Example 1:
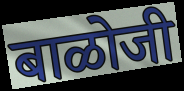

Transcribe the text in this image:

बाळोजी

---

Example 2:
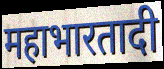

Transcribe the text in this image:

महाभारतादी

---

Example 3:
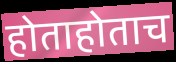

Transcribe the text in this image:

होताहोताच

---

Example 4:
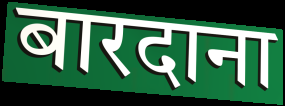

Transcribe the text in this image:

बारदाना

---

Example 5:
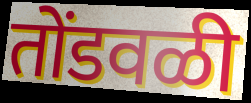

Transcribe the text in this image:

तोंडवळी